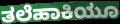
ತಲೆಹಾಕಿಯೂ